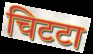
चिटटा